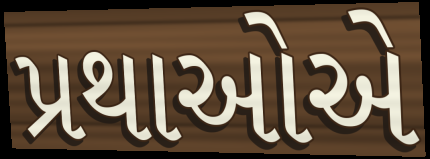
પ્રથાઓએ